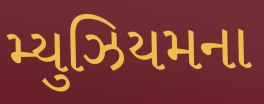
મ્યુઝિયમના